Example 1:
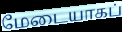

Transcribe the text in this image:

மேடையாகப்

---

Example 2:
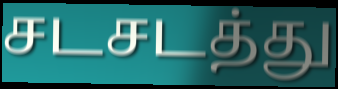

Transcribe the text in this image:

சடசடத்து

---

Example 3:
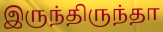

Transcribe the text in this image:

இருந்திருந்தா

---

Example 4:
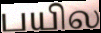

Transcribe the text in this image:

பயில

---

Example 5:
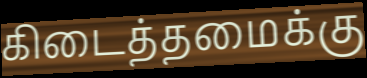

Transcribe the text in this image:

கிடைத்தமைக்கு